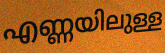
എണ്ണയിലുള്ള